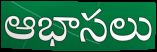
ఆభాసలు